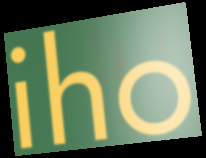
iho